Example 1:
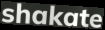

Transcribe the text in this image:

shakate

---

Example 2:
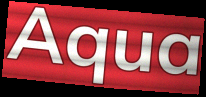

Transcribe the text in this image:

Aqua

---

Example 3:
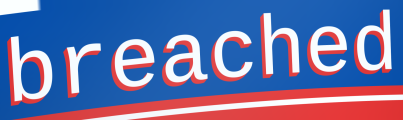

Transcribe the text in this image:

breached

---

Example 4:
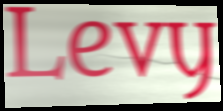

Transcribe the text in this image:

Levy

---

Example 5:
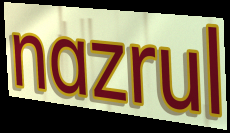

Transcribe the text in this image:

nazrul